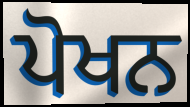
ਪੋਖਨ